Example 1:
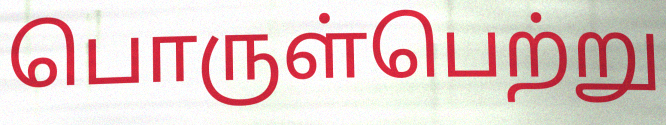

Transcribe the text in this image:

பொருள்பெற்று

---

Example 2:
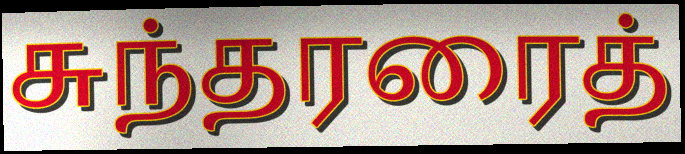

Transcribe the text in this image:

சுந்தரரைத்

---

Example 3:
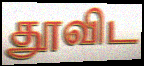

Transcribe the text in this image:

தூவிட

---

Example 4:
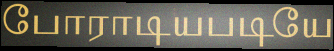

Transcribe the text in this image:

போராடியபடியே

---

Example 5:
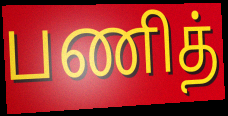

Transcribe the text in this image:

பணித்